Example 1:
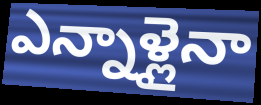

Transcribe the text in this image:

ఎన్నాళ్లైనా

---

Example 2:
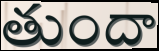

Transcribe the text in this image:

తుందా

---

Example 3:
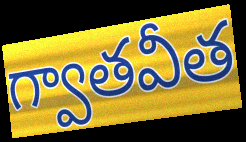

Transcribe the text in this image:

గ్వాతవీత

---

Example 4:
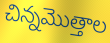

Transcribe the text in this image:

చిన్నమొత్తాల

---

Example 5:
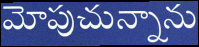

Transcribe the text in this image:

మోపుచున్నాను